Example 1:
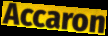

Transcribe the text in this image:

Accaron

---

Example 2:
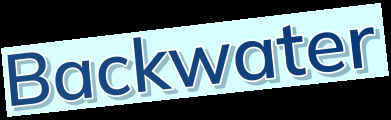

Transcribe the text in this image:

Backwater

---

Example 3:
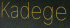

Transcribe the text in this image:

Kadege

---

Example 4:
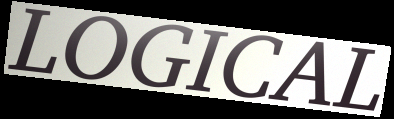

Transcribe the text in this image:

LOGICAL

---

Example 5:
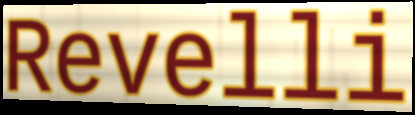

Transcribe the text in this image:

Revelli